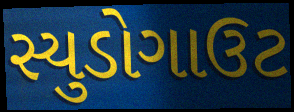
સ્યુડોગાઉટ